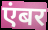
एंबर